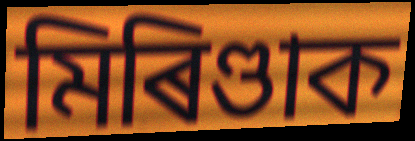
মিৰিণ্ডাক